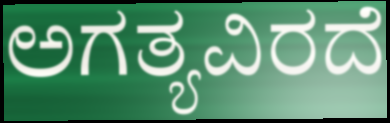
ಅಗತ್ಯವಿರದೆ